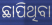
ଛାପିଥିବା